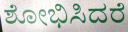
ಶೋಭಿಸಿದರೆ